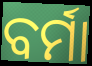
ବର୍ମା